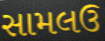
સામલઉ